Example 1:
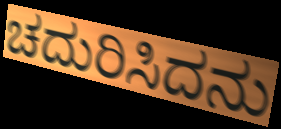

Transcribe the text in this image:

ಚದುರಿಸಿದನು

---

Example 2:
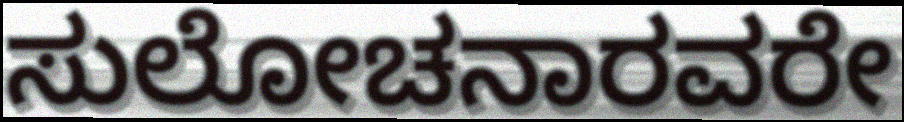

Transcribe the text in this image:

ಸುಲೋಚನಾರವರೇ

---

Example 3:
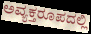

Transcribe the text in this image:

ಅವ್ಯಕ್ತರೂಪದಲ್ಲಿ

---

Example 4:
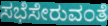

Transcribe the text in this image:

ಸಭೆಸೇರುವಂತೆ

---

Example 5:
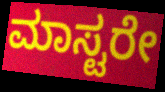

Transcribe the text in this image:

ಮಾಸ್ಟರೇ